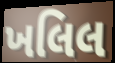
ખલિલ